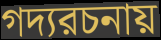
গদ্যরচনায়